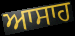
ਆਸਾਹ